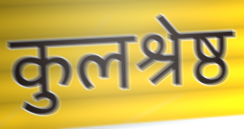
कुलश्रेष्ठ